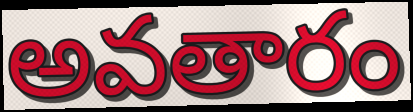
అవతారం